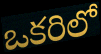
ఒకరిలో